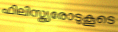
ഫിലിസ്ത്യരോടുകൂടെ